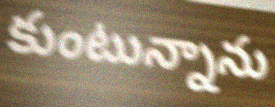
కుంటున్నాను